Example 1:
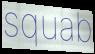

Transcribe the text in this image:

squab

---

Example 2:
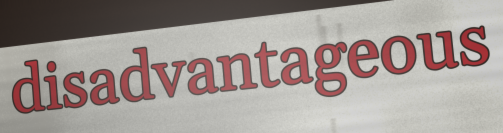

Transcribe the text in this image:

disadvantageous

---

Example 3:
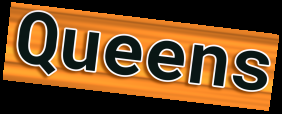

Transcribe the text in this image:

Queens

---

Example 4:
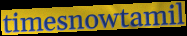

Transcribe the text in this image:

timesnowtamil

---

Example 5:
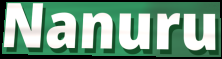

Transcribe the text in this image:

Nanuru